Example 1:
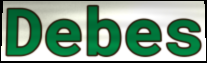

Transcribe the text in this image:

Debes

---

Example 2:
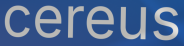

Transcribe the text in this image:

cereus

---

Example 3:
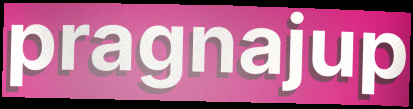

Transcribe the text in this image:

pragnajup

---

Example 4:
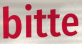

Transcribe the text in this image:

bitte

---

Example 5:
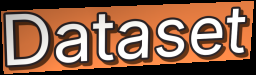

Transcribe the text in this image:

Dataset